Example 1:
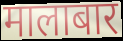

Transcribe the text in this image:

मालाबार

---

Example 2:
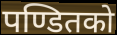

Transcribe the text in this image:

पण्डितको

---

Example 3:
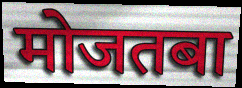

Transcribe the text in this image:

मोजतबा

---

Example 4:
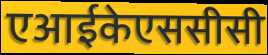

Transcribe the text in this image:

एआईकेएससीसी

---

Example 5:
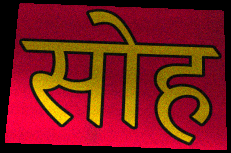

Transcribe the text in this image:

सोह